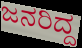
ಜನರಿದ್ದ